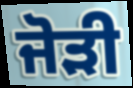
ਜੋੜੀ